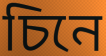
চিনে